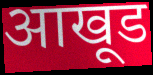
आखूड